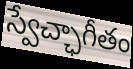
స్వేచ్ఛాగీతం